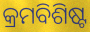
କ୍ରମବିଶିଷ୍ଟ